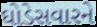
ઘોડેસવારને